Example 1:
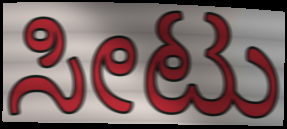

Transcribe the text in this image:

ಸೀಟು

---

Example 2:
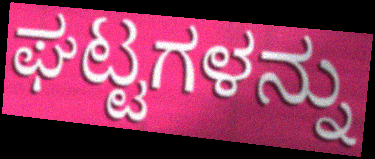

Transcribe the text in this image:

ಘಟ್ಟಗಳನ್ನು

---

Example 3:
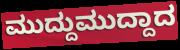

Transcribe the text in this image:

ಮುದ್ದುಮುದ್ದಾದ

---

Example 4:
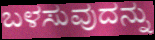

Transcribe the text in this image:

ಬಳಸುವುದನ್ನು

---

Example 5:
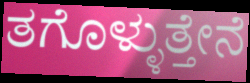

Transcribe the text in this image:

ತಗೊಳ್ಳುತ್ತೇನೆ